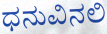
ಧನುವಿನಲಿ